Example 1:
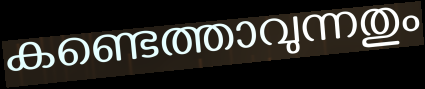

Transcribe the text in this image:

കണ്ടെത്താവുന്നതും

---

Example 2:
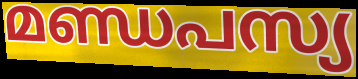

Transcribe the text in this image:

മണ്ഡപസ്യ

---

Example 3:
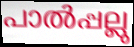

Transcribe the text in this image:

പാൽപ്പല്ലു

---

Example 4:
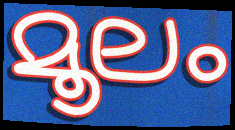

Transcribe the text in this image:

മൂലം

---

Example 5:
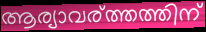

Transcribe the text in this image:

ആര്യാവര്ത്തത്തിന്